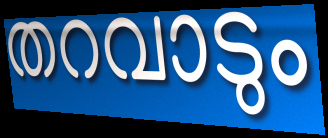
തറവാടും